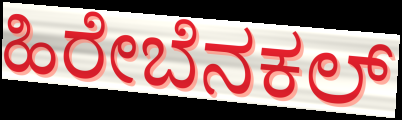
ಹಿರೇಬೆನಕಲ್